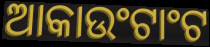
ଆକାଉଂଟାଂଟ